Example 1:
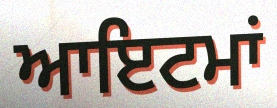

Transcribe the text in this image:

ਆਇਟਮਾਂ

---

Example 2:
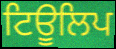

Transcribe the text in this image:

ਟਿਊਲਿਪ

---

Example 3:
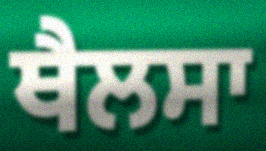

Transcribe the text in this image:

ਥੈਲਸਾ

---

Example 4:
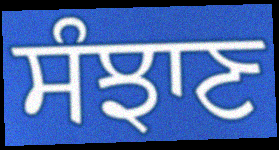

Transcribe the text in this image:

ਸੰਝਾਣ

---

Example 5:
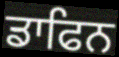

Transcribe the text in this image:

ਡਾਫਿਨ